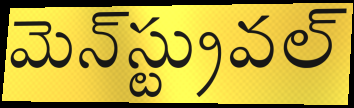
మెన్‌స్ట్రువల్